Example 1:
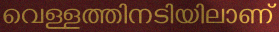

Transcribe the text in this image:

വെള്ളത്തിനടിയിലാണ്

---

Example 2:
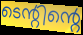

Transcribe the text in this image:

ടെന്റിന്റെ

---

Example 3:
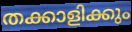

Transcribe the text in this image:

തക്കാളിക്കും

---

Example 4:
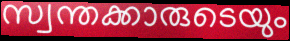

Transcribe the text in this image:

സ്വന്തക്കാരുടെയും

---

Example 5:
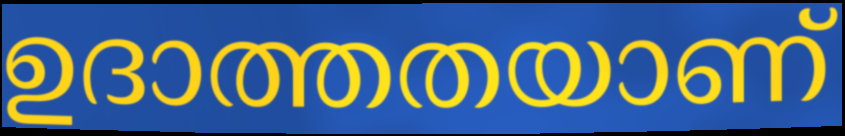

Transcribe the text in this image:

ഉദാത്തതയാണ്